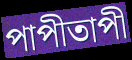
পাপীতাপী